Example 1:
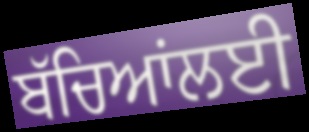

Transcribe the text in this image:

ਬੱਚਿਆਂਲਈ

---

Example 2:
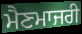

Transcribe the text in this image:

ਮੈਣਮਾਜਰੀ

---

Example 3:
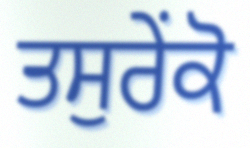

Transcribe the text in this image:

ਤਸੁਰੇਂਕੋ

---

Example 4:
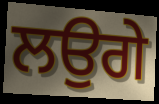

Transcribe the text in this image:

ਲਉਗੇ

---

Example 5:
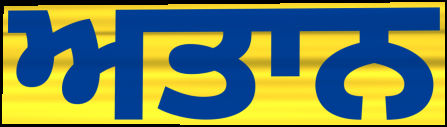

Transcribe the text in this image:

ਅਤਾਨ